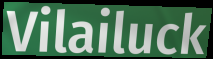
Vilailuck